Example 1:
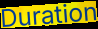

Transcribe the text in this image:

Duration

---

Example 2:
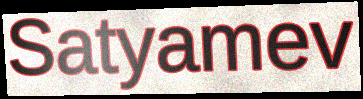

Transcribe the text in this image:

Satyamev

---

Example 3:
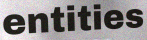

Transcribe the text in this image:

entities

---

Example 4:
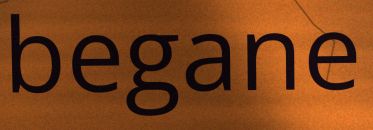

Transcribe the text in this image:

begane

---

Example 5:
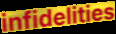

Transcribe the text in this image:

infidelities